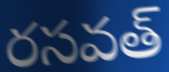
రసవత్